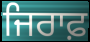
ਜਿਰਾਫ਼